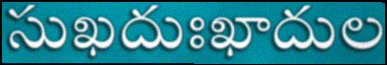
సుఖదుఃఖాదుల